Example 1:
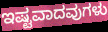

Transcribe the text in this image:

ಇಷ್ಟವಾದವುಗಳು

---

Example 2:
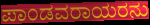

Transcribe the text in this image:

ಪಾಂಡವರಾಯರನು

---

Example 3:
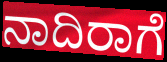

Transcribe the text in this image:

ನಾದಿರಾಗೆ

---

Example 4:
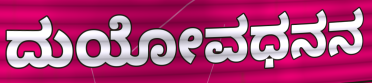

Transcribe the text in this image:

ದುಯೋವಧನನ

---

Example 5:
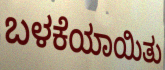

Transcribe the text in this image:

ಬಳಕೆಯಾಯಿತು